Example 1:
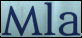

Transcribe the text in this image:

Mla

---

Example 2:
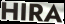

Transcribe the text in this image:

HIRA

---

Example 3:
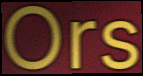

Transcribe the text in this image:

Ors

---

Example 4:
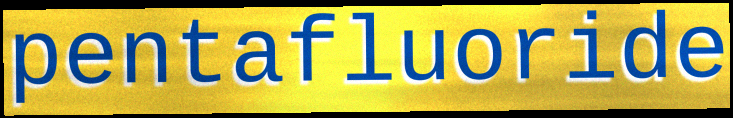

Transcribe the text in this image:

pentafluoride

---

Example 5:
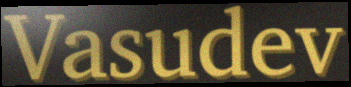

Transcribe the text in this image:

Vasudev